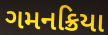
ગમનક્રિયા